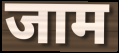
जाम